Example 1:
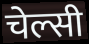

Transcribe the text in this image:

चेल्सी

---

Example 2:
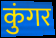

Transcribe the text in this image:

कुंगर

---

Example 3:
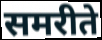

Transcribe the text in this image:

समरीते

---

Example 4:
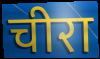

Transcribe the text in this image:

चीरा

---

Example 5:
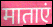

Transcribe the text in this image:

माताएं